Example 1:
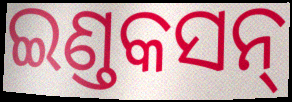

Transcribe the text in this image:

ଇଣ୍ଡକସନ୍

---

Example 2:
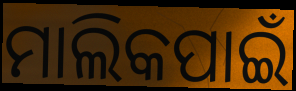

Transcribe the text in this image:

ମାଲିକପାଇଁ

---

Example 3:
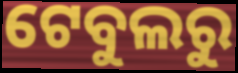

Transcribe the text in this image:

ଟେବୁଲରୁ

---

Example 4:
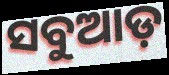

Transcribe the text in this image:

ସବୁଆଡ଼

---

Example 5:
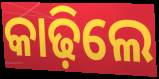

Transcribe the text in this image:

କାଢ଼ିଲେ